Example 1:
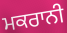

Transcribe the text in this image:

ਮਕਰਾਨੀ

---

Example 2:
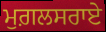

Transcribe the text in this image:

ਮੁਗ਼ਲਸਰਾਏ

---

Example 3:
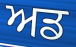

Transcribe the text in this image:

ਅਡ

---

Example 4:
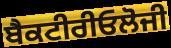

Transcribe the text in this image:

ਬੈਕਟੀਰੀਓਲੋਜੀ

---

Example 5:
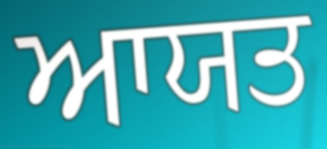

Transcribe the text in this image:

ਆਯਤ